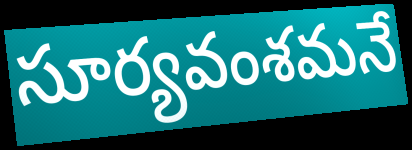
సూర్యవంశమనే